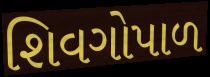
શિવગોપાળ